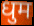
धुम